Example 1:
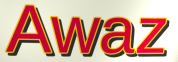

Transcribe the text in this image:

Awaz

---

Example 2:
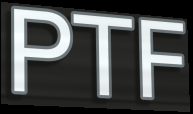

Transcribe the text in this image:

PTF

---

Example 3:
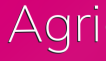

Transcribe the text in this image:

Agri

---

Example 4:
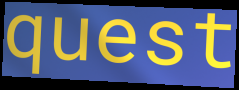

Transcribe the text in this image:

quest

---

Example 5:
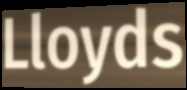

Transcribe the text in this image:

Lloyds